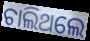
ଚାଲିଥଲେ